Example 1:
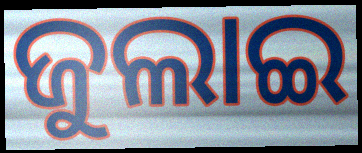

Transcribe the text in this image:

ଜୁଲାଇ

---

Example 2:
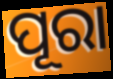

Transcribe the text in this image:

ପୂରା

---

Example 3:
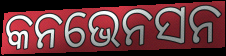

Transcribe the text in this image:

କନଭେନସନ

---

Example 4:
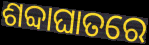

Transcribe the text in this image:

ଶବ୍ଦାଘାତରେ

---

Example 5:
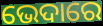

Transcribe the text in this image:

ଭେଦାରେ